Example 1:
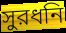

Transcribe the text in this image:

সুরধনি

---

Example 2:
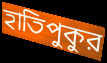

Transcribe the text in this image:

হাতিপুকুর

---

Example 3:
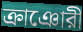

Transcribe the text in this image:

ক্রাঞোরী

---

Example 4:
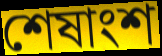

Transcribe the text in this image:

শেষাংশ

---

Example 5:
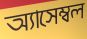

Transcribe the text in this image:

অ্যাসেম্বল